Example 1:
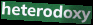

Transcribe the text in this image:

heterodoxy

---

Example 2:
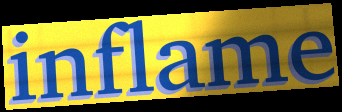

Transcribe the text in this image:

inflame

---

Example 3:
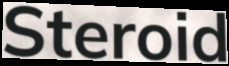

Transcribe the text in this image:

Steroid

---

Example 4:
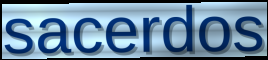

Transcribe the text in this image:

sacerdos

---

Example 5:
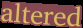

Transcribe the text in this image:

altered